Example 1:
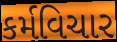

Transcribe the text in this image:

કર્મવિચાર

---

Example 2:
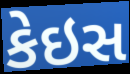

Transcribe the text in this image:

કેઇસ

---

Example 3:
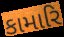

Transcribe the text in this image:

કામારિ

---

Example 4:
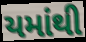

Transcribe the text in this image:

યમાંથી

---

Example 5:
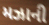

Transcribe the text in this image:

મઝાની